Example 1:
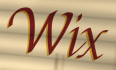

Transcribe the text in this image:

Wix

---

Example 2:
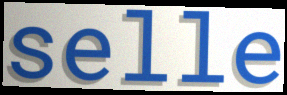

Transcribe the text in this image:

selle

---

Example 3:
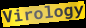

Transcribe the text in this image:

Virology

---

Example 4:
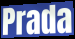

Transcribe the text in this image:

Prada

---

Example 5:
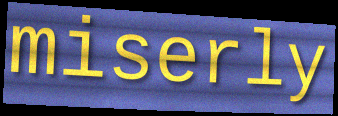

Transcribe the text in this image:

miserly